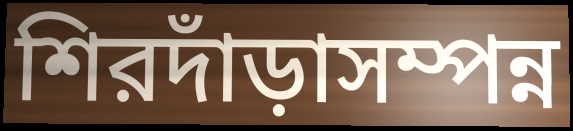
শিরদাঁড়াসম্পন্ন